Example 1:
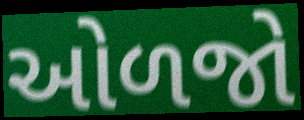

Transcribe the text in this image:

ઓળજો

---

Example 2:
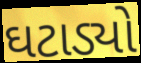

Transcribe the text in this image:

ઘટાડ્યો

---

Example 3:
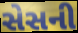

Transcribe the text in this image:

સેસની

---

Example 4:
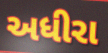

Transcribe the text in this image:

અધીરા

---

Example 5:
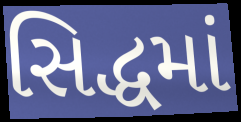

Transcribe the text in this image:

સિદ્ધમાં